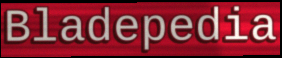
Bladepedia